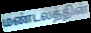
மண்டலத்தின்